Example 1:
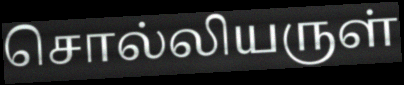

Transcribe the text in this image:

சொல்லியருள்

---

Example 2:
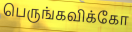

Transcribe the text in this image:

பெருங்கவிக்கோ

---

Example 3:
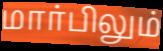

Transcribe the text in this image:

மார்பிலும்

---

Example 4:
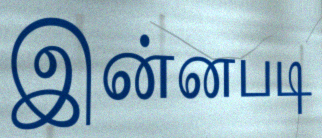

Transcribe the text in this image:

இன்னபடி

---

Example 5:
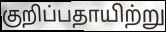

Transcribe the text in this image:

குறிப்பதாயிற்று